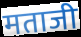
मताजी